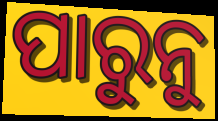
ପାରୁନୁ